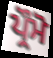
ਪ੍ਰੌਮੋ